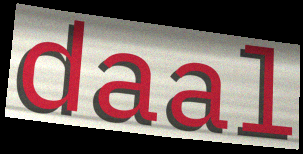
daal